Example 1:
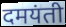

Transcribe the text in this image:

दमयंती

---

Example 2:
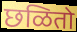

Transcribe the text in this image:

छळितो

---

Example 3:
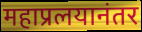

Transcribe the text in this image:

महाप्रलयानंतर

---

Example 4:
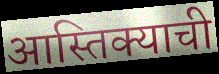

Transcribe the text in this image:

आस्तिक्याची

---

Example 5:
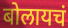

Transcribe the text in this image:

बोलायचं